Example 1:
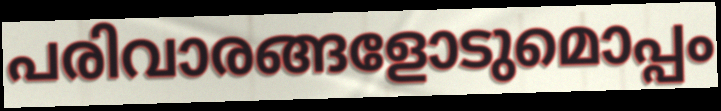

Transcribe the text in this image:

പരിവാരങ്ങളോടുമൊപ്പം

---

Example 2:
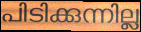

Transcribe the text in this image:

പിടിക്കുന്നില്ല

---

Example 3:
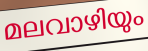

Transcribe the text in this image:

മലവാഴിയും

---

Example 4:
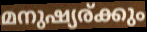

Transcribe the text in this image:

മനുഷ്യര്ക്കും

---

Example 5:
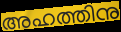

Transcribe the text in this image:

അഹത്തിനു